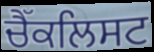
ਚੈੱਕਲਿਸਟ